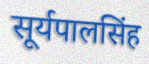
सूर्यपालसिंह